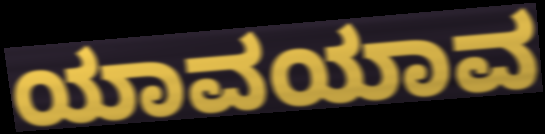
ಯಾವಯಾವ